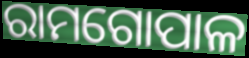
ରାମଗୋପାଳ